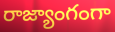
రాజ్యాంగంగా